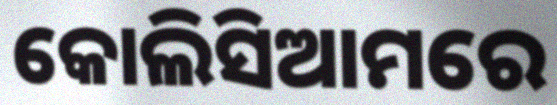
କୋଲିସିଆମରେ